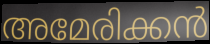
അമേരിക്കൻ